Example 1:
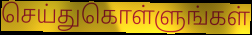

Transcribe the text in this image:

செய்துகொள்ளுங்கள்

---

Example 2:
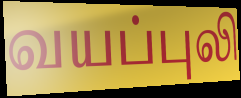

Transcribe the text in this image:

வயப்புலி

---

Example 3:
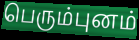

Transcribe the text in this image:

பெரும்புனம்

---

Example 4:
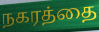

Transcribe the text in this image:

நகரத்தை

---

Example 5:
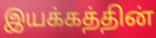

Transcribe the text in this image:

இயக்கத்தின்